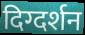
दिग्दर्शन